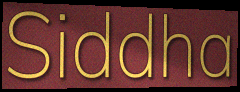
Siddha